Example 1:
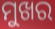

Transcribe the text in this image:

ମୁଖର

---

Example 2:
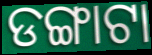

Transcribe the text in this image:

ଡଙ୍ଗାଟା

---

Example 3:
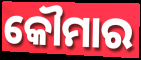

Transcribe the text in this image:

କୌମାର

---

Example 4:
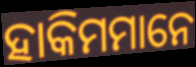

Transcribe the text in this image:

ହାକିମମାନେ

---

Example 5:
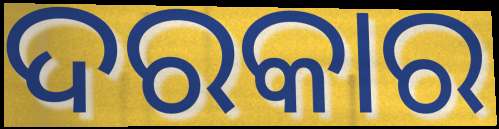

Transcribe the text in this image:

ଦରକାର